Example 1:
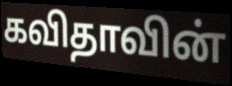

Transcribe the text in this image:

கவிதாவின்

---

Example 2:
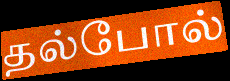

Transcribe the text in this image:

தல்போல்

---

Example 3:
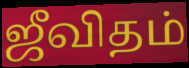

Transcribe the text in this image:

ஜீவிதம்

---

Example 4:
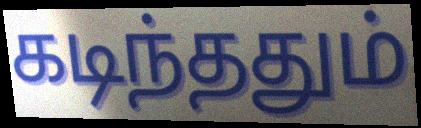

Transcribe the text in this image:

கடிந்ததும்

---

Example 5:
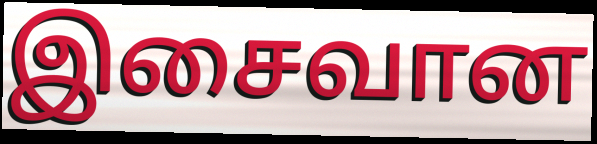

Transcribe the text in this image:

இசைவான